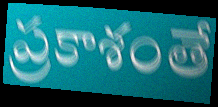
ప్రకాశంతే